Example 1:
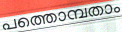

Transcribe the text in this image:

പത്തൊമ്പതാം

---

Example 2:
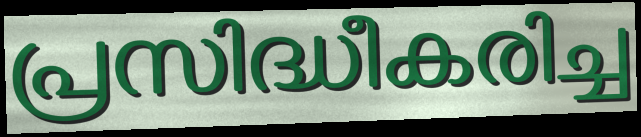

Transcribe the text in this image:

പ്രസിദ്ധീകരിച്ച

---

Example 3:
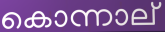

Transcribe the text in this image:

കൊന്നാല്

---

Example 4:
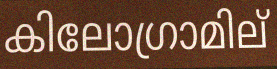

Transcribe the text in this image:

കിലോഗ്രാമില്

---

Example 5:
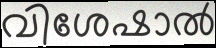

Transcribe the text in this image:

വിശേഷാൽ